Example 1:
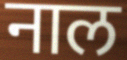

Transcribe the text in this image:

नाल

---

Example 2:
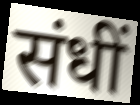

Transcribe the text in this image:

संधीं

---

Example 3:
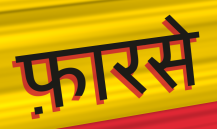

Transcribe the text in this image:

फ़ारसे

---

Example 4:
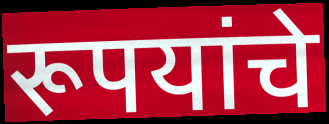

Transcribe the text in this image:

रूपयांचे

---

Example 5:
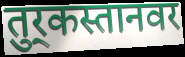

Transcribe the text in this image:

तुर्कस्तानवर